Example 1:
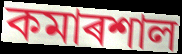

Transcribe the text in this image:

কমাৰশাল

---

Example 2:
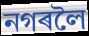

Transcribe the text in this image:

নগৰলৈ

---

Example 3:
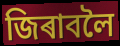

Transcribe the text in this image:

জিৰাবলৈ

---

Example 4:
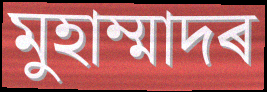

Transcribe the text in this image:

মুহাম্মাদৰ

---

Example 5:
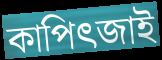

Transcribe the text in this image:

কাপিৎজাই